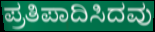
ಪ್ರತಿಪಾದಿಸಿದವು